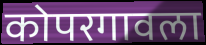
कोपरगावला